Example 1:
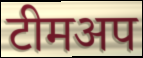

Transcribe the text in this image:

टीमअप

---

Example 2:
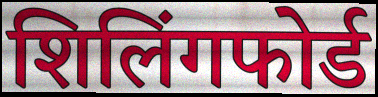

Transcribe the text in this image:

शिलिंगफोर्ड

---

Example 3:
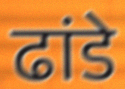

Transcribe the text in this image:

ढांडे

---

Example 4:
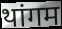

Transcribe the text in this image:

थांगम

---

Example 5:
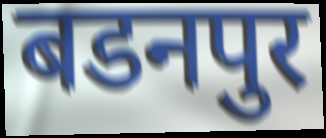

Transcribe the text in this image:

बडनपुर